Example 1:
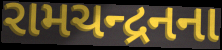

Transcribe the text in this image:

રામચન્દ્રનના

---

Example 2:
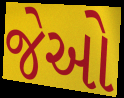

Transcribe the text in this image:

જેઓ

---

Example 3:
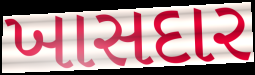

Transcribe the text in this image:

ખાસદાર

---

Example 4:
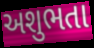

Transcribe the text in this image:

અશુભતા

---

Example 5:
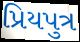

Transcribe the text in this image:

પ્રિયપુત્ર